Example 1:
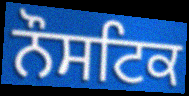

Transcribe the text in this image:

ਨੌਸਟਿਕ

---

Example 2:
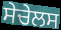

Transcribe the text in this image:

ਸੇਚੇਲਸ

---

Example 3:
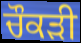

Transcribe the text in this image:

ਚੌਕੜੀ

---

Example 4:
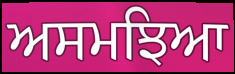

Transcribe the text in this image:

ਅਸਮਝਿਆ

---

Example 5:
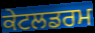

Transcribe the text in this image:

ਕੇਟਲਡਰਮ